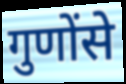
गुणोंसे